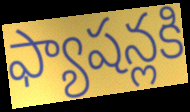
ఫ్యాషన్లకి